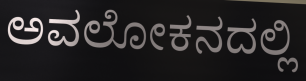
ಅವಲೋಕನದಲ್ಲಿ